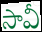
సావీ